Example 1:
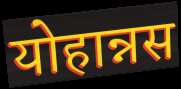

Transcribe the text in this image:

योहान्नस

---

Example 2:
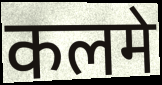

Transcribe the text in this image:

कलमे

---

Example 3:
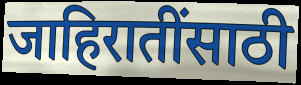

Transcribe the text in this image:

जाहिरातींसाठी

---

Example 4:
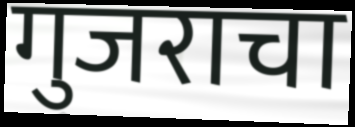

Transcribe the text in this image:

गुजराचा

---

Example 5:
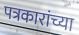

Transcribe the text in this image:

पत्रकारांच्या